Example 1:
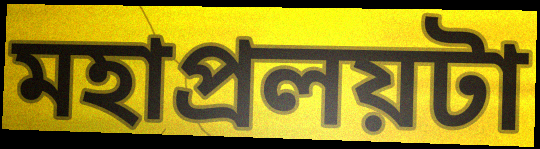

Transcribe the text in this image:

মহাপ্রলয়টা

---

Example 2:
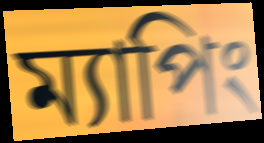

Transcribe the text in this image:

ম্যাপিং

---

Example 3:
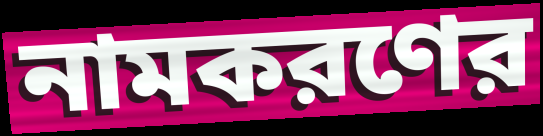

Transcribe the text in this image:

নামকরণের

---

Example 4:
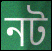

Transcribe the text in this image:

নট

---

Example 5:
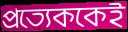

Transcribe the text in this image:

প্রত্যেককেই